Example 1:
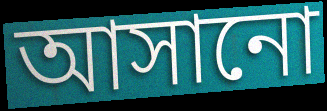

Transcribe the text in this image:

আসানো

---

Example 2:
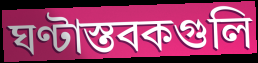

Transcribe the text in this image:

ঘণ্টাস্তবকগুলি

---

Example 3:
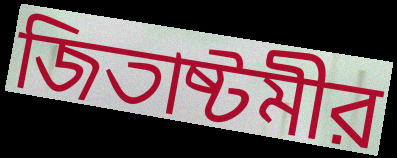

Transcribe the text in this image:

জিতাষ্টমীর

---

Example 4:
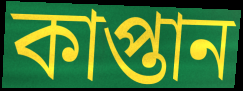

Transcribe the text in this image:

কাপ্তান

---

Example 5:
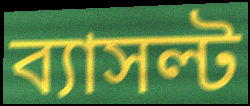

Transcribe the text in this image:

ব্যাসল্ট